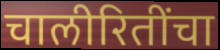
चालीरितींचा